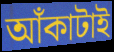
আঁকাটাই